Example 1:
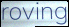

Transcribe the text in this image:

roving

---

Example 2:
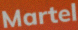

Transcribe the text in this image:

Martel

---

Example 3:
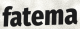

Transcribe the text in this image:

fatema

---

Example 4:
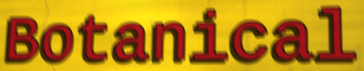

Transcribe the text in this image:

Botanical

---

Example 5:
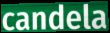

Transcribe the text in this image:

candela